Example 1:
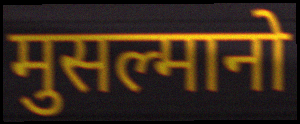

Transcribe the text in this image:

मुसल्मानो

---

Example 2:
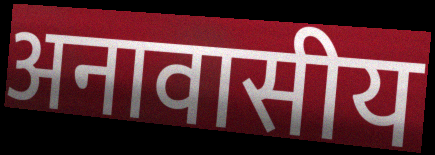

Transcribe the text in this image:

अनावासीय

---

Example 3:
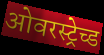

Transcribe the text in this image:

ओवरस्ट्रेच्ड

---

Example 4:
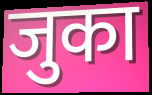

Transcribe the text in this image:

जुका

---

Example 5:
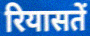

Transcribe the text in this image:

रियासतें